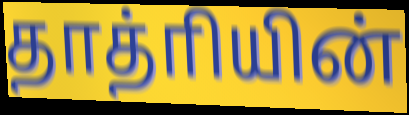
தாத்ரியின்